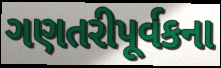
ગણતરીપૂર્વકના